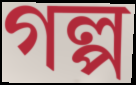
গল্প